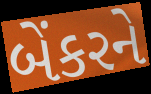
બેંકરને